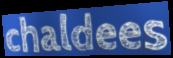
chaldees